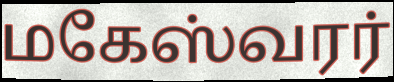
மகேஸ்வரர்